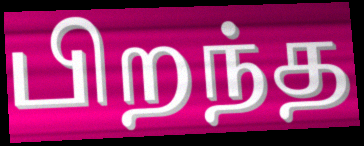
பிறந்த